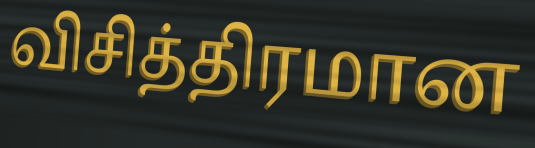
விசித்திரமான